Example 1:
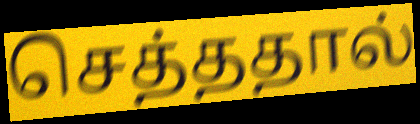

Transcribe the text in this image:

செத்ததால்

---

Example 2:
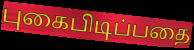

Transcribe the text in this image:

புகைபிடிப்பதை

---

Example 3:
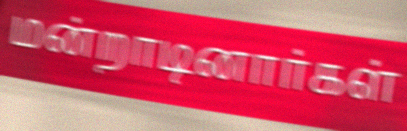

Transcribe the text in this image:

மன்றாடினார்கள்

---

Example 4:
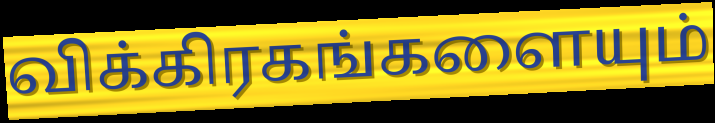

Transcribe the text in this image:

விக்கிரகங்களையும்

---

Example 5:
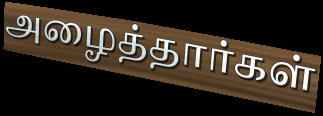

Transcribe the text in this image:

அழைத்தார்கள்